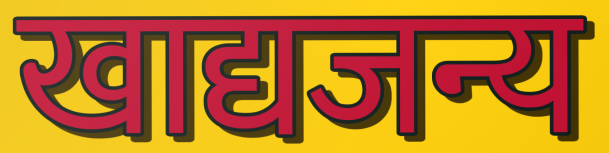
खाद्यजन्य